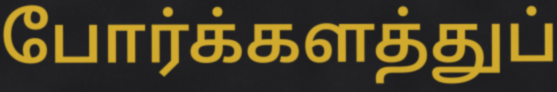
போர்க்களத்துப்